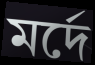
মর্দে